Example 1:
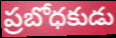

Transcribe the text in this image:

ప్రబోధకుడు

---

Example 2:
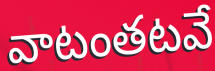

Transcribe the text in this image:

వాటంతటవే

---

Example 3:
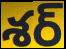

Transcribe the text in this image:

శర్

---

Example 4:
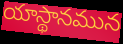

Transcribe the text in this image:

యాస్థానమున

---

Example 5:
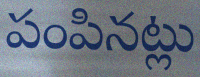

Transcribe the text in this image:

పంపినట్లు